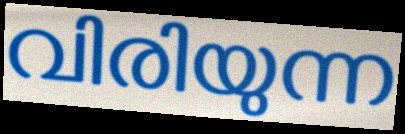
വിരിയുന്ന